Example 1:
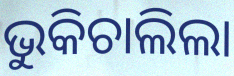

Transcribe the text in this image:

ଭୁକିଚାଲିଲା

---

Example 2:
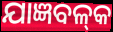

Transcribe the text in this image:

ଯାଜ୍ଞବଳ୍‌କ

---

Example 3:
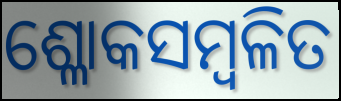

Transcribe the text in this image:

ଶ୍ଳୋକସମ୍ବଳିତ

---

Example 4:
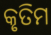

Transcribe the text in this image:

କୃତିମ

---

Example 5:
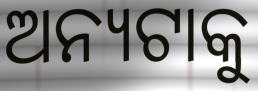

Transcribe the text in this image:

ଅନ୍ୟଟାକୁ